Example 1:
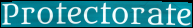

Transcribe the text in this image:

Protectorate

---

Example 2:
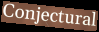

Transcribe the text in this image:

Conjectural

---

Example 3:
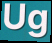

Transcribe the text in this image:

Ug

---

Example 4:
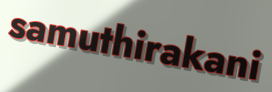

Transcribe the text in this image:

samuthirakani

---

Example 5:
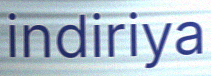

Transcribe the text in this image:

indiriya